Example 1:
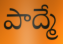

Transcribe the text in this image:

పాద్మే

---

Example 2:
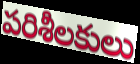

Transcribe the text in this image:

పరిశీలకులు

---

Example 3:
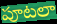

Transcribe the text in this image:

పూటలా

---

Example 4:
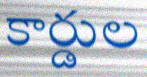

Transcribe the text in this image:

కార్డుల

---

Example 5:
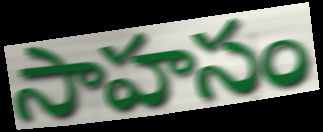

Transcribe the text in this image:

సాహసం